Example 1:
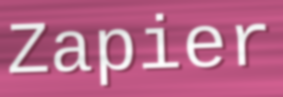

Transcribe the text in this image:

Zapier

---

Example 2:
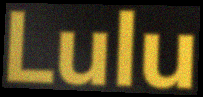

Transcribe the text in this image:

Lulu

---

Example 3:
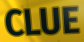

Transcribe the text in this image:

CLUE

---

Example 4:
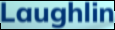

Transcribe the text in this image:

Laughlin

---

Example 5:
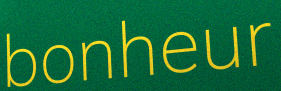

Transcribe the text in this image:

bonheur